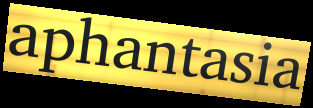
aphantasia